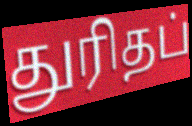
துரிதப்